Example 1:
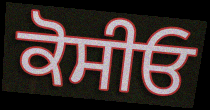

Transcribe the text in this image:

ਕੋਸੀਓ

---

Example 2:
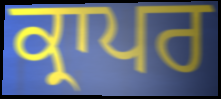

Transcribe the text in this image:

ਕ੍ਰਾਪਰ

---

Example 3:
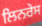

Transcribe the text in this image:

ਲਿਨਰੇਸ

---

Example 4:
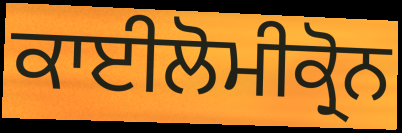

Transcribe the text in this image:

ਕਾਈਲੋਮੀਕ੍ਰੋਨ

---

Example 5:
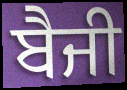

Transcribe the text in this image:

ਬੈਜੀ